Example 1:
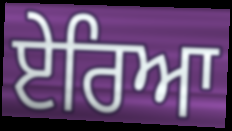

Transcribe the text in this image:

ਏਰਿਆ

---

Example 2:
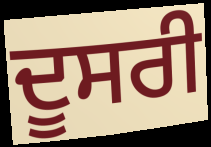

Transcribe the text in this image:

ਦੂਸਰੀ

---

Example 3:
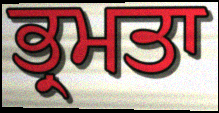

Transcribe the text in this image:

ਭ੍ਰਮਤਾ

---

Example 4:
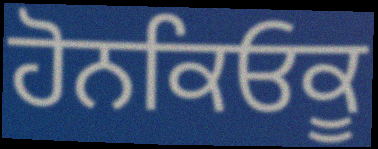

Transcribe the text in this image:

ਹੋਨਕਿਓਕੂ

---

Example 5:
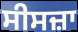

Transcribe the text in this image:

ਸੀਸਜ਼ਾ